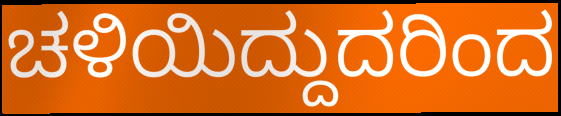
ಚಳಿಯಿದ್ದುದರಿಂದ